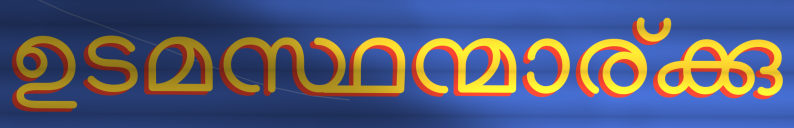
ഉടമസ്ഥന്മാര്ക്കു